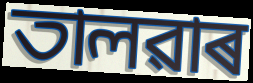
তালৱাৰ